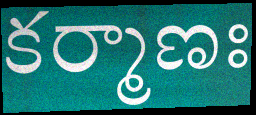
కర్మాణః